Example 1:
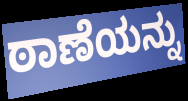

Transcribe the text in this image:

ಠಾಣೆಯನ್ನು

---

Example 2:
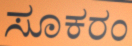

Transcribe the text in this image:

ಸೂಕರಂ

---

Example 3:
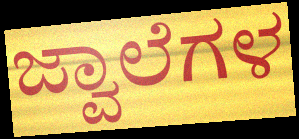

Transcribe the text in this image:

ಜ್ವಾಲೆಗಳ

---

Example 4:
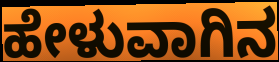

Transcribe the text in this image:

ಹೇಳುವಾಗಿನ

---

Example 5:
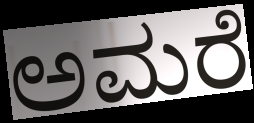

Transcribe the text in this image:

ಅಮರೆ